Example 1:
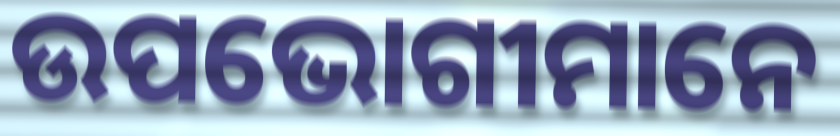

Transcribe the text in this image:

ଉପଭୋଗୀମାନେ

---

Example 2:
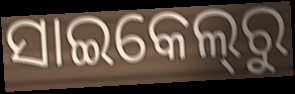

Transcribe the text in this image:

ସାଇକେଲ୍‌ରୁ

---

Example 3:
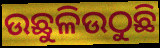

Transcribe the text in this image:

ଉଛୁଳିଉଠୁଛି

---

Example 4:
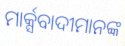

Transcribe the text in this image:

ମାର୍କ୍ସବାଦୀମାନଙ୍କ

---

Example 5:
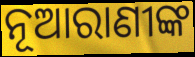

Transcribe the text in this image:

ନୂଆରାଣୀଙ୍କ